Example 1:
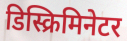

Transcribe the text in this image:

डिस्क्रिमिनेटर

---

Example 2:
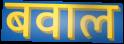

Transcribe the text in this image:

बवाल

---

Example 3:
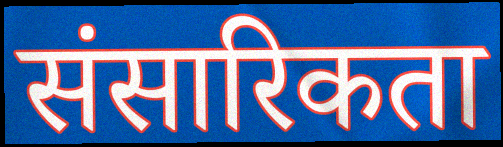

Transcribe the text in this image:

संसारिकता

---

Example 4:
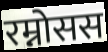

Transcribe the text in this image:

रम्नोसस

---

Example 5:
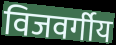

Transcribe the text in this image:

विजवर्गीय